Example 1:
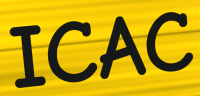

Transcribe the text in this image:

ICAC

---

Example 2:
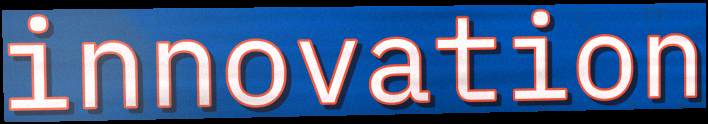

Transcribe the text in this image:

innovation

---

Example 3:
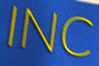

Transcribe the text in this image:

INC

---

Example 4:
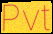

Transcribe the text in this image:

Pvt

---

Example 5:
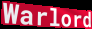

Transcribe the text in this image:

Warlord